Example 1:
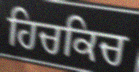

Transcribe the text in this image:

ਹਿਚਕਿਚ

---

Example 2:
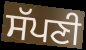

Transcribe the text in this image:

ਸੱਪਣੀ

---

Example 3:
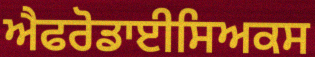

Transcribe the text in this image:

ਐਫਰੋਡਾਈਸਿਅਕਸ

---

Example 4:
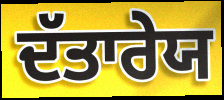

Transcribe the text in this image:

ਦੱਤਾਰੇਯ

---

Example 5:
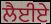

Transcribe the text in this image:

ਲੈਈਏ